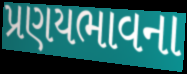
પ્રણયભાવના